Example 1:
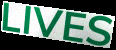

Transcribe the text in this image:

LIVES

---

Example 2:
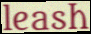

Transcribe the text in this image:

leash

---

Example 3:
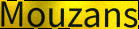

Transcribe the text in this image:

Mouzans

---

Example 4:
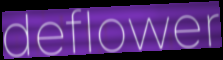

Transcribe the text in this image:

deflower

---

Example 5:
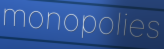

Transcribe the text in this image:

monopolies